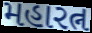
મહારત્ન